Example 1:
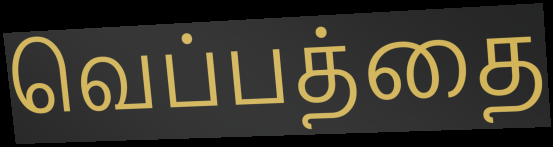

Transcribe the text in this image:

வெப்பத்தை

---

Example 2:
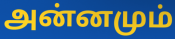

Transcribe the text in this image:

அன்னமும்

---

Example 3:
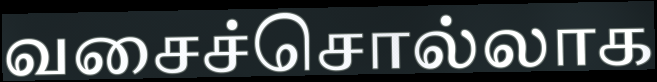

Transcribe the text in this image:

வசைச்சொல்லாக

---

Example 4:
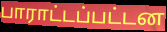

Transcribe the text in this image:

பாராட்டப்பட்டன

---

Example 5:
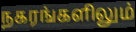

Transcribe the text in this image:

நகரங்களிலும்